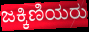
ಜಕ್ಕಿಣಿಯರು